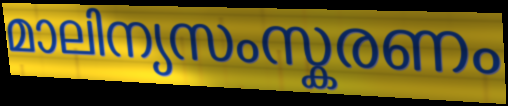
മാലിന്യസംസ്കരണം